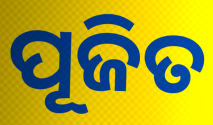
ପୂଜିତ